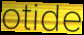
otide